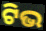
ଟିଭ